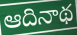
ఆదినాథ